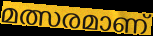
മത്സരമാണ്